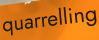
quarrelling